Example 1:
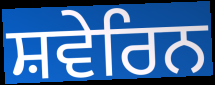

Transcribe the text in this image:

ਸ਼ਵੇਰਿਨ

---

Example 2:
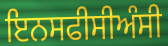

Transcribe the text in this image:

ਇਨਸਫੀਸੀਅੰਸੀ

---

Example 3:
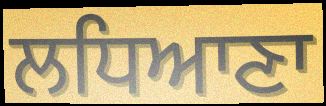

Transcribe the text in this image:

ਲਧਿਆਣਾ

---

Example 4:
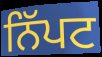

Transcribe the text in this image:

ਨਿੱਪਟ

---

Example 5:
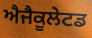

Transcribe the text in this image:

ਐਜੈਕੂਲੇਟਡ